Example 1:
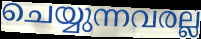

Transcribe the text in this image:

ചെയ്യുന്നവരല്ല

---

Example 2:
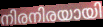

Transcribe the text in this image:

നിരനിരയായി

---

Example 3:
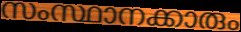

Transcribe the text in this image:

സംസ്ഥാനക്കാരും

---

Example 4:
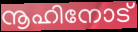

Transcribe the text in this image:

നൂഹിനോട്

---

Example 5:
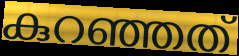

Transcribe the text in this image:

കുറഞ്ഞത്